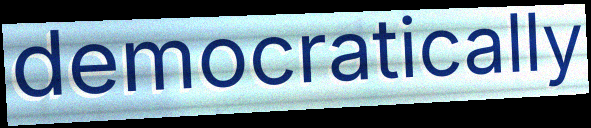
democratically